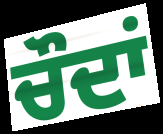
ਚੌਦਾਂ